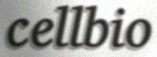
cellbio